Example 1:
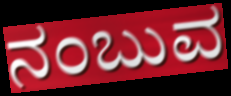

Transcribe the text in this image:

ನಂಬುವ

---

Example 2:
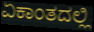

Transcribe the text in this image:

ಏಕಾಂತದಲ್ಲಿ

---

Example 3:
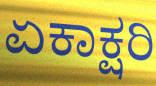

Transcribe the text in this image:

ಏಕಾಕ್ಷರಿ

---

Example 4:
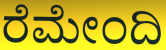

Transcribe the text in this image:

ರೆಮೇಂದಿ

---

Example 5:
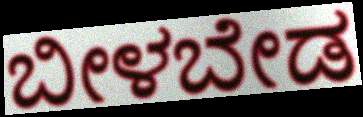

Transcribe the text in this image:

ಬೀಳಬೇಡ